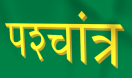
पश्चांत्र